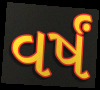
વર્ષં